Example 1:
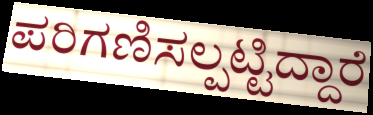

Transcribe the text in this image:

ಪರಿಗಣಿಸಲ್ಪಟ್ಟಿದ್ದಾರೆ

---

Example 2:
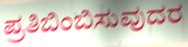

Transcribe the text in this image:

ಪ್ರತಿಬಿಂಬಿಸುವುದರ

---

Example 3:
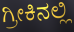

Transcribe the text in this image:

ಗ್ರೀಕಿನಲ್ಲಿ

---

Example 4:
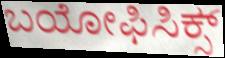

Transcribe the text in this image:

ಬಯೋಫಿಸಿಕ್ಸ್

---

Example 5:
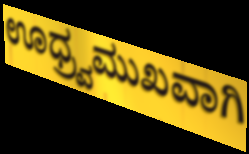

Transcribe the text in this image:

ಊಧ್ರ್ವಮುಖವಾಗಿ